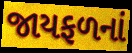
જાયફળનાં